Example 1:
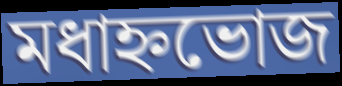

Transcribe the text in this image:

মধাহ্নভোজ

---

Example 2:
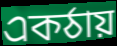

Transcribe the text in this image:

একঠায়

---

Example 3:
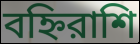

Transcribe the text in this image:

বহ্নিরাশি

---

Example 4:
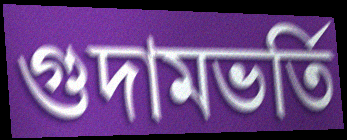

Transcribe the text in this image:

গুদামভর্তি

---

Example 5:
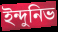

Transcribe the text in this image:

ইন্দুনিভ